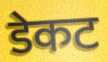
डेकट